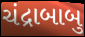
ચંદ્રાબાબુ